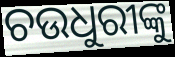
ଚଉଧୁରୀଙ୍କୁ